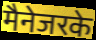
मैनेजरके